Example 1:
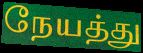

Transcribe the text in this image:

நேயத்து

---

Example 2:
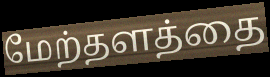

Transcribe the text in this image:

மேற்தளத்தை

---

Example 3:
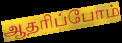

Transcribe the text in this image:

ஆதரிப்போம்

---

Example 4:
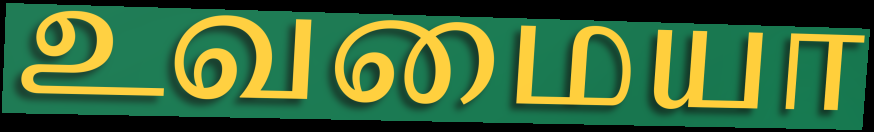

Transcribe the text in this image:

உவமையா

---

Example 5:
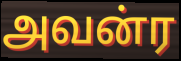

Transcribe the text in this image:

அவன்ர